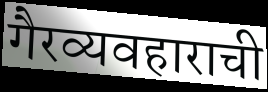
गैरव्यवहाराची